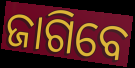
ଜାଗିବେ